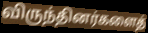
விருந்தினர்களைத்